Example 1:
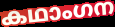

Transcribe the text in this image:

കഥാംഗന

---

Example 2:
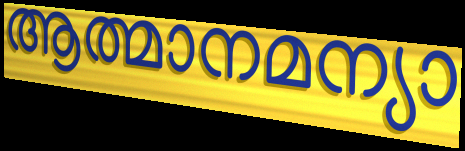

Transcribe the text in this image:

ആത്മാനമന്യാ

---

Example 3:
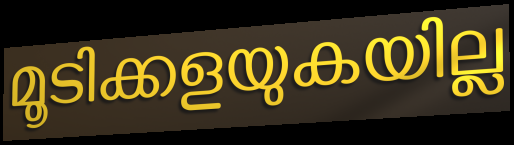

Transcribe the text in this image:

മൂടിക്കളയുകയില്ല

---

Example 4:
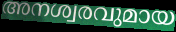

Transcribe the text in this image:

അനശ്വരവുമായ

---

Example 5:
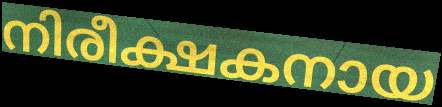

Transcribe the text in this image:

നിരീക്ഷകനായ